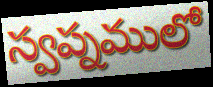
స్వప్నములో